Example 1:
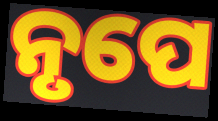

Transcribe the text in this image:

ନୃପେ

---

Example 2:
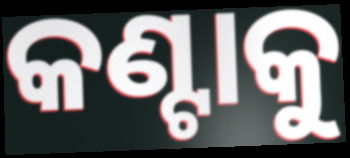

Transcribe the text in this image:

କଣ୍ଟାକୁ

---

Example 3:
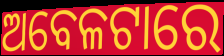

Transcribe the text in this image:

ଅବେଳଟାରେ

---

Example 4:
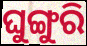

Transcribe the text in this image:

ଘୁଙ୍ଗୁରି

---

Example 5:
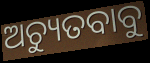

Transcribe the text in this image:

ଅଚ୍ୟୁତବାବୁ